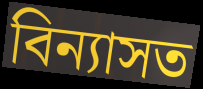
বিন্যাসত